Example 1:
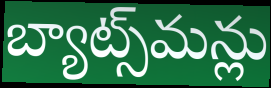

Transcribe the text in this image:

బ్యాట్స్‌మన్లు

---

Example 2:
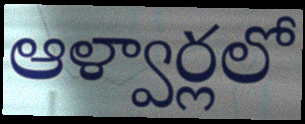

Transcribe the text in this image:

ఆళ్వార్లలో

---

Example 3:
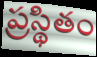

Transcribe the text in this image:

ప్రస్థితం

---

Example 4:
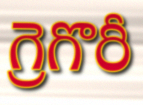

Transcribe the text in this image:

గ్రెగొరీ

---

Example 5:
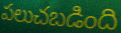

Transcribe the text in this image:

పలుచబడింది